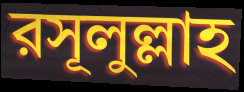
রসূলুল্লাহ